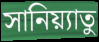
সানিয়্যাতু